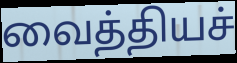
வைத்தியச்